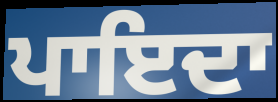
ਪਾਇਦਾ